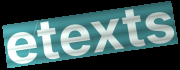
etexts